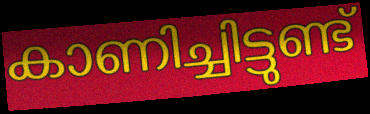
കാണിച്ചിട്ടുണ്ട്